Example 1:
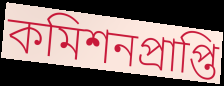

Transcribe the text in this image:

কমিশনপ্রাপ্তি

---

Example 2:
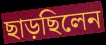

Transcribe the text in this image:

ছাড়ছিলেন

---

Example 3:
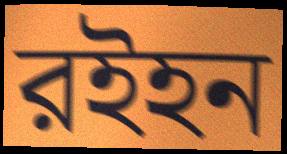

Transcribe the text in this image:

রইহন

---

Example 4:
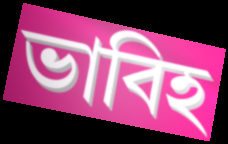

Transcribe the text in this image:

ভাবিহ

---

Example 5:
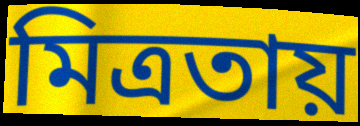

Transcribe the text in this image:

মিত্রতায়